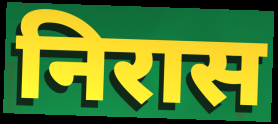
निरास